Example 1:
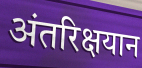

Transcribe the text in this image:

अंतरिक्षयान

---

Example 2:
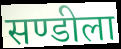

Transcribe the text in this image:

सण्डीला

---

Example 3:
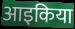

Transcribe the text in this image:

आइकिया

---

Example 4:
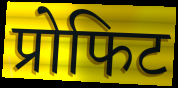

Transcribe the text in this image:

प्रोफिट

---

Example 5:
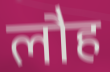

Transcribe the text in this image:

लौह